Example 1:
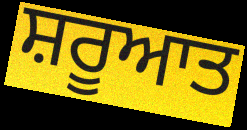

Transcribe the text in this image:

ਸ਼ਰੂਆਤ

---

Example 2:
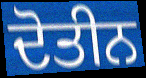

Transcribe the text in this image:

ਦੋਤੀਨ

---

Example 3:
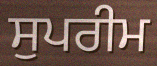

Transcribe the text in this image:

ਸੁਪਰੀਮ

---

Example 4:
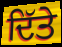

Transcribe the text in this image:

ਦਿੱਤੇ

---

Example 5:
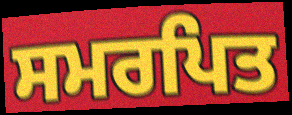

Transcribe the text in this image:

ਸਮਰਪਿਤ